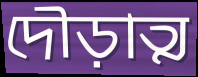
দৌড়াত্ম